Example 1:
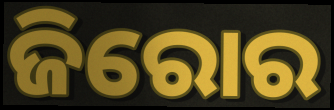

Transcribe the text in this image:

ଜିରୋର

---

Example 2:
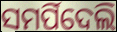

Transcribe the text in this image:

ସମର୍ପିଦେଲି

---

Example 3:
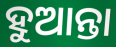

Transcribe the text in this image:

ହୁଆନ୍ତା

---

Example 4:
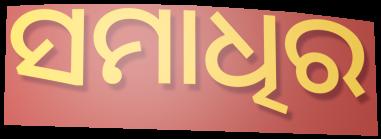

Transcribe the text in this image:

ସମାଧିର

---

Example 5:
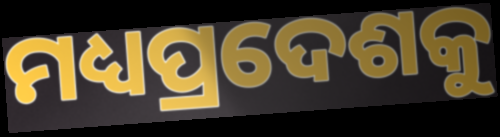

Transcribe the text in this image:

ମଧ୍ୟପ୍ରଦେଶକୁ